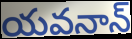
యవనాన్